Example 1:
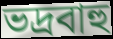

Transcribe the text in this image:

ভদ্রবাহু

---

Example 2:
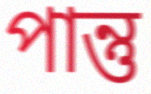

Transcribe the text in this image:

পান্তু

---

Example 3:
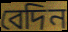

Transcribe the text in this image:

বেদিন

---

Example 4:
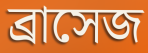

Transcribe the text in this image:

ব্রাসেজ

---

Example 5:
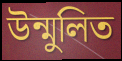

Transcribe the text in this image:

উন্মুলিত